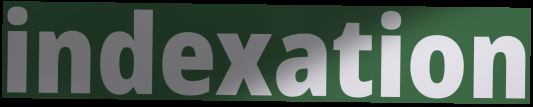
indexation